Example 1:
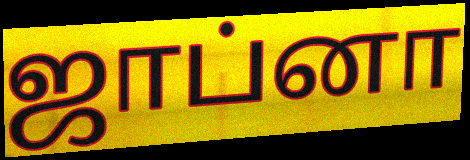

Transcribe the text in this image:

ஜாப்னா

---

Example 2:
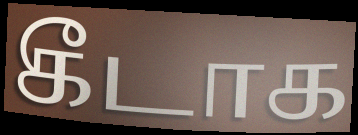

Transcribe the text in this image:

கீடாக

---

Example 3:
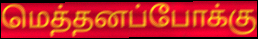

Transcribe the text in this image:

மெத்தனப்போக்கு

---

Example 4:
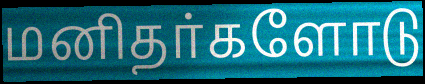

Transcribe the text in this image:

மனிதர்களோடு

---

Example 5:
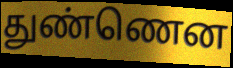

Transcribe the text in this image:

துண்ணென